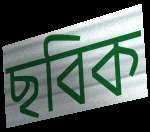
ছবিক